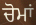
ਚੋਮਾਂ